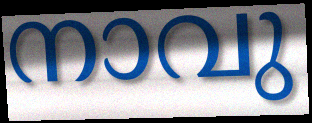
നാവു